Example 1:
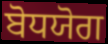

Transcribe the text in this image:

ਬੋਧਯੋਗ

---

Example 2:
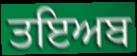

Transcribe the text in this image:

ਤਇਅਬ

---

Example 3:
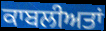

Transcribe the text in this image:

ਕਾਬਲੀਅਤਾਂ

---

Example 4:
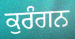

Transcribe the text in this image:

ਕੁਰੰਗਨ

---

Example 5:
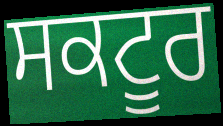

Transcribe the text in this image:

ਸਕਟੂਰ